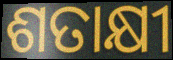
ଶତାକ୍ଷୀ